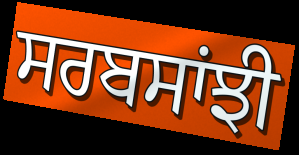
ਸਰਬਸਾਂਝੀ